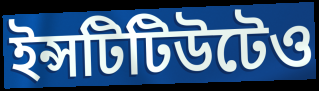
ইন্সটিটিউটেও